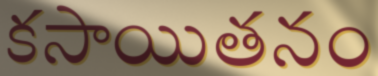
కసాయితనం